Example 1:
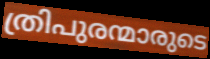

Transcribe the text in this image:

ത്രിപുരന്മാരുടെ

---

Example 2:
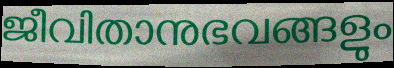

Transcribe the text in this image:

ജീവിതാനുഭവങ്ങളും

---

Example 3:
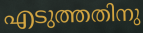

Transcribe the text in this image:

എടുത്തതിനു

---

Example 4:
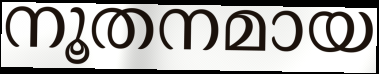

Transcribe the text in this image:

നൂതനമായ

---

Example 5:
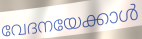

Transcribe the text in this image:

വേദനയേക്കാൾ